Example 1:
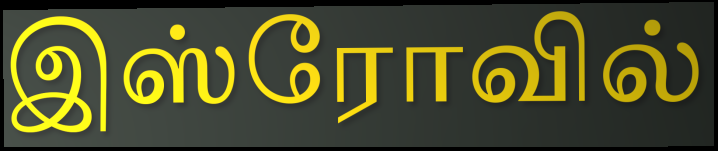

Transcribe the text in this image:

இஸ்ரோவில்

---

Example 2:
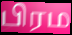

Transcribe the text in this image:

பிரம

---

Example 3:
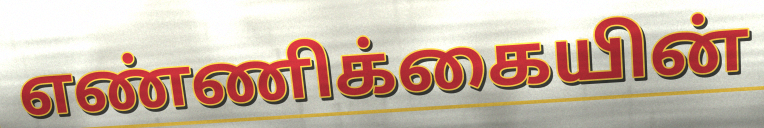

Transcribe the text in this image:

எண்ணிக்கையின்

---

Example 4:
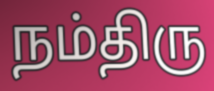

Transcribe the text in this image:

நம்திரு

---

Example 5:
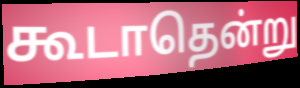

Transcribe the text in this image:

கூடாதென்று